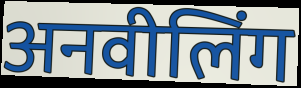
अनवीलिंग